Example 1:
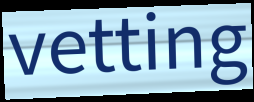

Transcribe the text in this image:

vetting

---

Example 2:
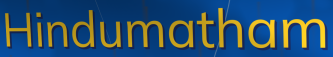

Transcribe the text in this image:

Hindumatham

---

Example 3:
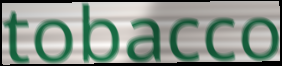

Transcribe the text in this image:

tobacco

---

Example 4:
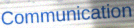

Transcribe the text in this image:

Communication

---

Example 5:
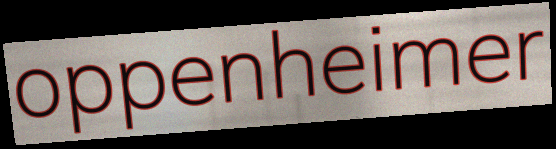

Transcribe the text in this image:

oppenheimer